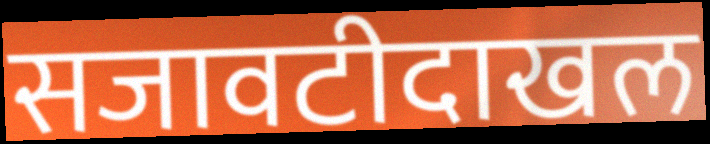
सजावटीदाखल